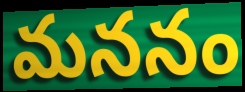
మననం